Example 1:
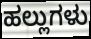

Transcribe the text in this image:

ಹಲ್ಲುಗಳು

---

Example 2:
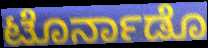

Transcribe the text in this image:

ಟೊರ್ನಾಡೊ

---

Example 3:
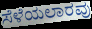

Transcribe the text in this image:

ಸೆಳೆಯಲಾರವು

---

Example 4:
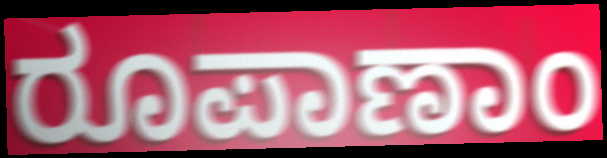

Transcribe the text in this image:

ರೂಪಾಣಾಂ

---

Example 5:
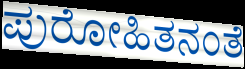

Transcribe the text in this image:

ಪುರೋಹಿತನಂತೆ